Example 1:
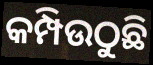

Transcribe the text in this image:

କମ୍ପିଉଠୁଛି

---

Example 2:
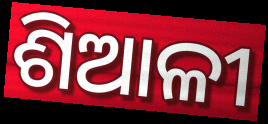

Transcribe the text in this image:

ଶିଆଳୀ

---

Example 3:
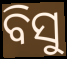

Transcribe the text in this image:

ବିସୁ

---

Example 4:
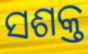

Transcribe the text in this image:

ସଶକ୍ତ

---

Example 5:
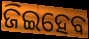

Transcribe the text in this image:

ଜିଇହେବ